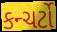
કન્ચર્ટો